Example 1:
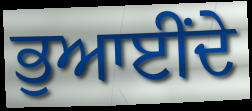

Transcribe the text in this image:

ਭੁਆਈਂਦੇ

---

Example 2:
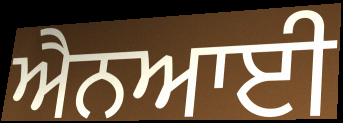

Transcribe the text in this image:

ਐਨਆਈ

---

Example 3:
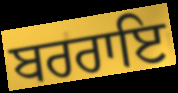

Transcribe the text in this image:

ਬਰਰਾਇ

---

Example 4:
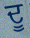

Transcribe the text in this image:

ਦੂ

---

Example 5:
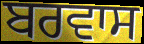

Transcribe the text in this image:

ਬਰਵਾਸ